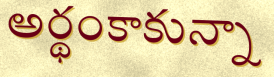
అర్థంకాకున్నా